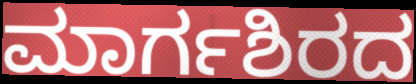
ಮಾರ್ಗಶಿರದ